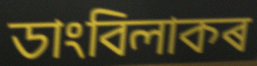
ডাংবিলাকৰ